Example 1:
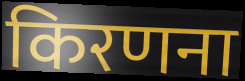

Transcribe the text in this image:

किरणना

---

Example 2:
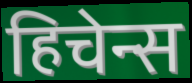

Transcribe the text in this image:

हिचेन्स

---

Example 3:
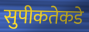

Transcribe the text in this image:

सुपीकतेकडे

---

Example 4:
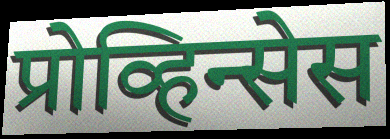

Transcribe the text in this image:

प्रोव्हिन्सेस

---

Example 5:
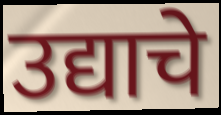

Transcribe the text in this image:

उद्याचे